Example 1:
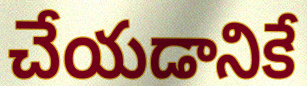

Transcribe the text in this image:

చేయడానికే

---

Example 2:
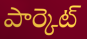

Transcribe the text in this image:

పార్కెట్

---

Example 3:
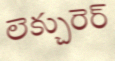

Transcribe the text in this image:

లెక్చురెర్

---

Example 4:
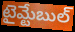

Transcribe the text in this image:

టైమ్టేబుల్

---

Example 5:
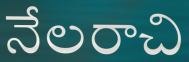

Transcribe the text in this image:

నేలరాచి